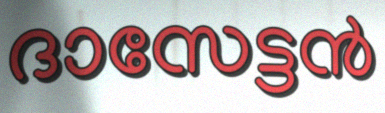
ദാസേട്ടൻ